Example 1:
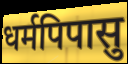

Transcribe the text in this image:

धर्मपिपासु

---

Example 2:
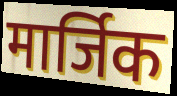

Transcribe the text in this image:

मार्जिक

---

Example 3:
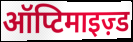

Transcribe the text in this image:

ऑप्टिमाइज़्ड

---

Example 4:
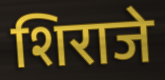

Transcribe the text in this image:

शिराजे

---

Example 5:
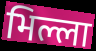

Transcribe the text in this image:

भिल्ला